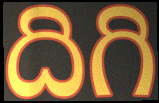
దిగి